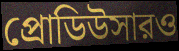
প্রোডিউসারও